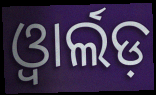
ଓ୍ୱାର୍ଲଡ଼